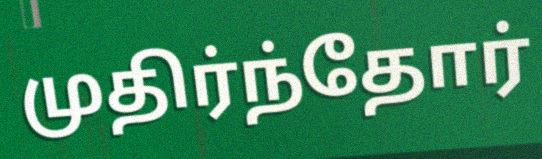
முதிர்ந்தோர்